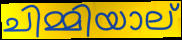
ചിമ്മിയാല്